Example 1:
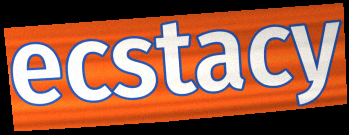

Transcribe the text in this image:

ecstacy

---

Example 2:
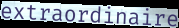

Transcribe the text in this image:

extraordinaire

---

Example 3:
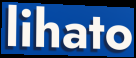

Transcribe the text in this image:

lihato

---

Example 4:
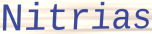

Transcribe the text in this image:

Nitrias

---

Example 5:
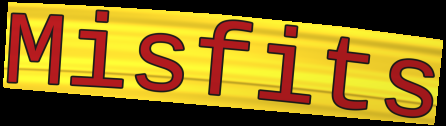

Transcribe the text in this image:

Misfits